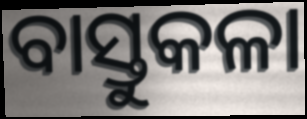
ବାସ୍ତୁକଳା